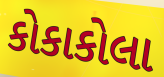
કોકાકોલા